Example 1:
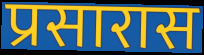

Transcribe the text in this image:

प्रसारास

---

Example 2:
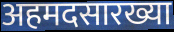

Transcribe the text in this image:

अहमदसारख्या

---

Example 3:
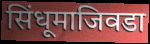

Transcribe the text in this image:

सिंधूमाजिवडा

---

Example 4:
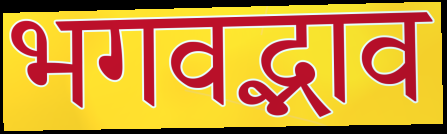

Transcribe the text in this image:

भगवद्भाव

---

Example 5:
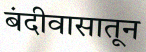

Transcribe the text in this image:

बंदीवासातून